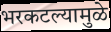
भरकटल्यामुळे